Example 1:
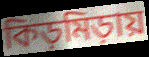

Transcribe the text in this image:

কিড়মিড়ায়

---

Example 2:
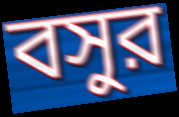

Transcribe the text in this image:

বসুর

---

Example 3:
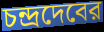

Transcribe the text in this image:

চন্দ্রদেবের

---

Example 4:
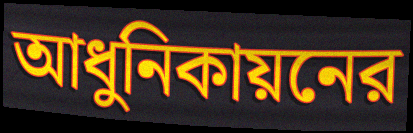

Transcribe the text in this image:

আধুনিকায়নের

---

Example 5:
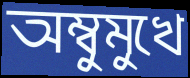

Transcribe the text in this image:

অম্বুমুখে